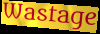
Wastage